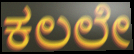
ಕಲಲೇ